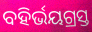
ବହିର୍ଭୟଗ୍ରସ୍ତ